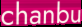
chanbu